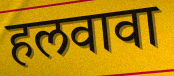
हलवावा